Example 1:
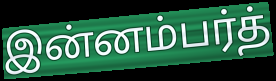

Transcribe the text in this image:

இன்னம்பர்த்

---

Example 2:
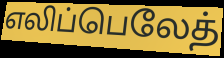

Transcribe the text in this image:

எலிப்பெலேத்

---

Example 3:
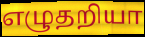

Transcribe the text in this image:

எழுதறியா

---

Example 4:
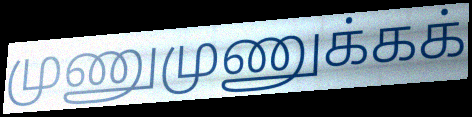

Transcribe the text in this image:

முணுமுணுக்கக்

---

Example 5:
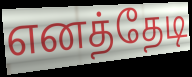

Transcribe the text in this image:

எனத்தேடி